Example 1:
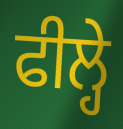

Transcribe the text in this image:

ਫੀਲ੍ਹੇ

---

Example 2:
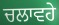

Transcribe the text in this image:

ਚਲਾਵਹੇ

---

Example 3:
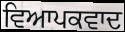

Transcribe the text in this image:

ਵਿਆਪਕਵਾਦ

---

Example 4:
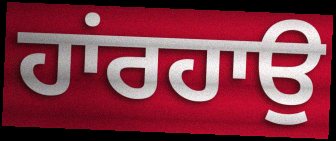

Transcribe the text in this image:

ਹਾਂਰਹਾਉ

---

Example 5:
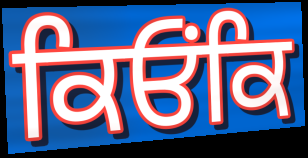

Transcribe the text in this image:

ਕਿਓਂਕਿ